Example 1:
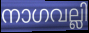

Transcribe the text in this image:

നാഗവല്ലി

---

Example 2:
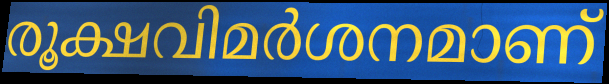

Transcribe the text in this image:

രൂക്ഷവിമർശനമാണ്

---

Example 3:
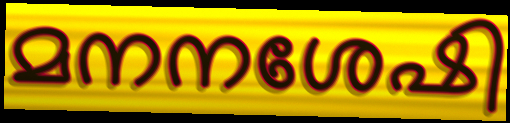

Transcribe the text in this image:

മനനശേഷി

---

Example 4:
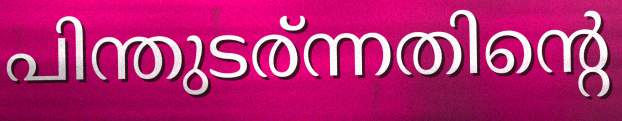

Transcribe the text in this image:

പിന്തുടര്ന്നതിന്റെ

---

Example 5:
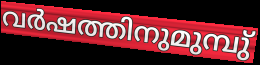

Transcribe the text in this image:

വർഷത്തിനുമുമ്പു്